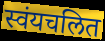
स्वंयचलित